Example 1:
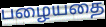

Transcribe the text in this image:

பழையதை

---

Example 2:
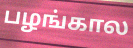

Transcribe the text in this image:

பழங்கால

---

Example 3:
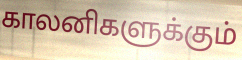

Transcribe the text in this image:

காலனிகளுக்கும்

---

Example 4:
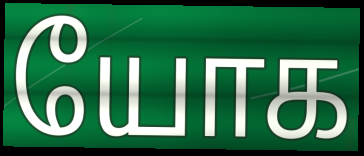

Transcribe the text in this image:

யோக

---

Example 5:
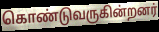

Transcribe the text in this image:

கொண்டுவருகின்றனர்